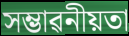
সম্ভাৱনীয়তা